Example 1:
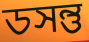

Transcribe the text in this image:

ডসন্তু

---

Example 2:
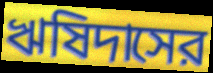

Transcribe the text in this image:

ঋষিদাসের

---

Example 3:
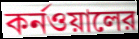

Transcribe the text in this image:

কর্নওয়ালের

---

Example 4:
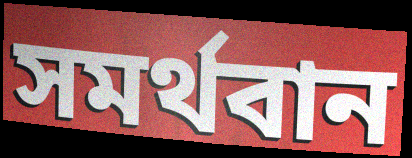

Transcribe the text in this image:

সমর্থবান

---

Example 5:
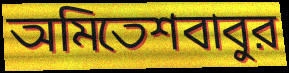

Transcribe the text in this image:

অমিতেশবাবুর